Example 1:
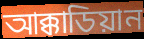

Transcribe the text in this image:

আক্কাডিয়ান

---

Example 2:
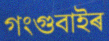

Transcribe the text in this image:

গংগুবাইৰ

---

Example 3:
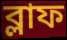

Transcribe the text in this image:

ব্লাফ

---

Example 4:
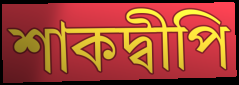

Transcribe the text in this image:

শাকদ্বীপি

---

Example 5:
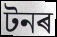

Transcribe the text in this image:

টনৰ